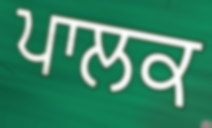
ਪਾਲਕ